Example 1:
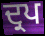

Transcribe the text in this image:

ਦ੍ਰਪ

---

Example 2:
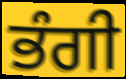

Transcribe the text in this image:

ਭੰਗੀ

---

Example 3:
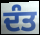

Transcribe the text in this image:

ਦੰਤ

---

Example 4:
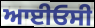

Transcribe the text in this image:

ਆਈਓਸੀ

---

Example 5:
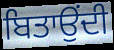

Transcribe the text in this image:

ਬਿਤਾਉਂਦੀ